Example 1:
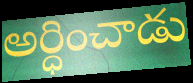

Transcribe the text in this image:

అర్ధించాడు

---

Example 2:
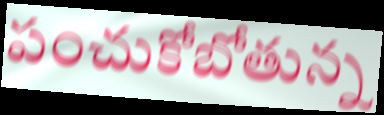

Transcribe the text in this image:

పంచుకోబోతున్న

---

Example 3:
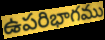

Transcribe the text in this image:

ఉపరిభాగము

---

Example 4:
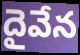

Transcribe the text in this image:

దైవేన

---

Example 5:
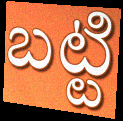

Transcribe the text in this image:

బట్టి